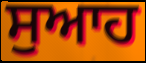
ਸੁਆਹ